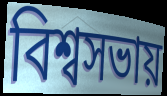
বিশ্বসভায়